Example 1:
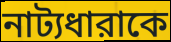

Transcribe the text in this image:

নাট্যধারাকে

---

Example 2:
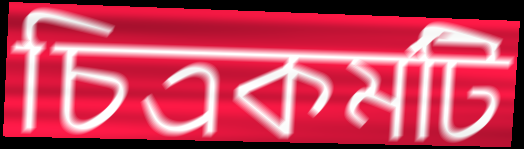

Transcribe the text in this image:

চিত্রকর্মটি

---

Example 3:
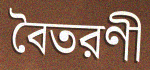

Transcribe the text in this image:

বৈতরণী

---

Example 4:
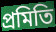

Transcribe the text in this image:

প্রমিতি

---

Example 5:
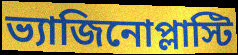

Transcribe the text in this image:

ভ্যাজিনোপ্লাস্টি